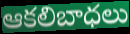
ఆకలిబాధలు